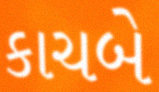
કાચબે